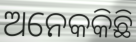
ଅନେକକିଛି